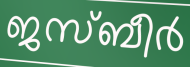
ജസ്ബീർ